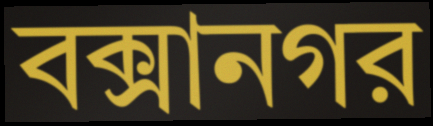
বক্সানগর